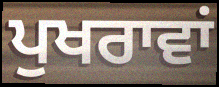
ਪੁਖਰਾਵਾਂ